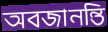
অবজানন্তি